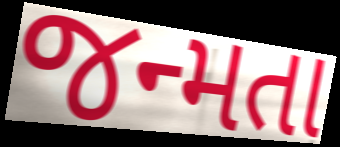
જન્મતા